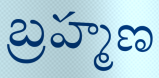
బ్రహ్మణ